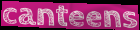
canteens